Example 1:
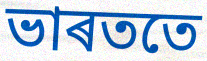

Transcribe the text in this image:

ভাৰততে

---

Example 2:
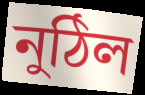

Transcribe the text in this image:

নুঠিল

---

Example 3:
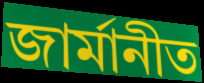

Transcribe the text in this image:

জাৰ্মানীত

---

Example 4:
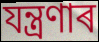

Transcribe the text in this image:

যন্ত্ৰণাৰ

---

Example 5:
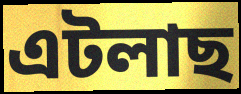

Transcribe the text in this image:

এটলাছ